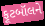
ફૂટબૉલને